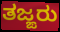
ತಜ್ಙರು